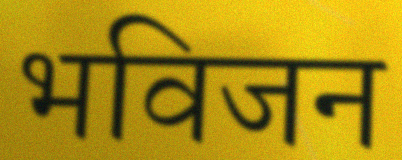
भविजन